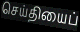
செய்தியைப்